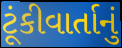
ટૂંકીવાર્તાનું